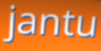
jantu